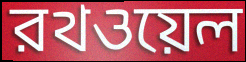
রথওয়েল